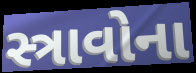
સ્ત્રાવોના